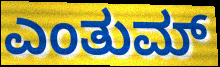
ಎಂತುಮ್